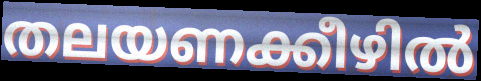
തലയണക്കീഴിൽ